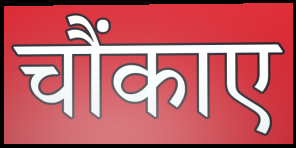
चौंकाए